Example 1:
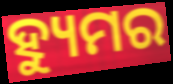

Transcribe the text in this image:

ହ୍ୟୁମର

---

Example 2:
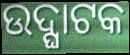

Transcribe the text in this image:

ଉଦ୍ଘାଟକ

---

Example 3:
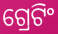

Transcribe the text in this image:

ଗ୍ରେଟିଂ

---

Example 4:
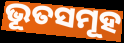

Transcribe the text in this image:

ଭୂତସମୂହ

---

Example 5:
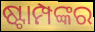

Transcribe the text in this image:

ଷ୍ଟାମ୍ପଙ୍କର